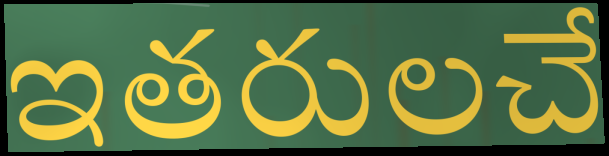
ఇతరులచే